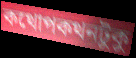
কথোপকথনটুকু